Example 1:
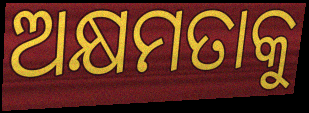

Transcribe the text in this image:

ଅକ୍ଷମତାକୁ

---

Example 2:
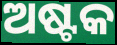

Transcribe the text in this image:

ଅଷ୍ଟକ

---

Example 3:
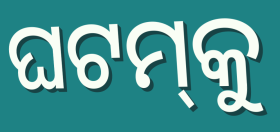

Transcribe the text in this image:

ଘଟମ୍‌କୁ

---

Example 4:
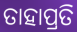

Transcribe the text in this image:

ତାହାପ୍ରତି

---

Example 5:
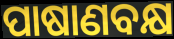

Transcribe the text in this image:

ପାଷାଣବକ୍ଷ